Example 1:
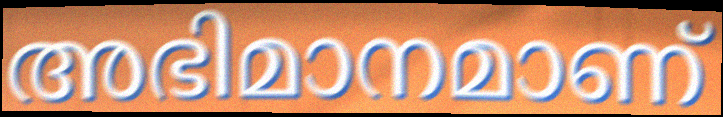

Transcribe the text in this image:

അഭിമാനമാണ്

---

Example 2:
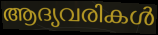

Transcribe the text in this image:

ആദ്യവരികൾ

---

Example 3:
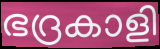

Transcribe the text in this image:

ഭദ്രകാളി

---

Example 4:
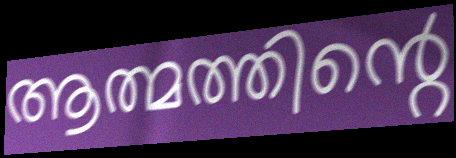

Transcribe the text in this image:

ആത്മത്തിന്റെ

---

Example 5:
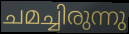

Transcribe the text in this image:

ചമച്ചിരുന്നു